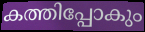
കത്തിപ്പോകും